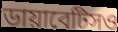
ডায়াবেটিসও